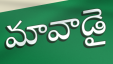
మావాడై